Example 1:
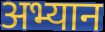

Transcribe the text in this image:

अभ्यान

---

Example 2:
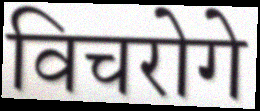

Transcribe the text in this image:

विचरोगे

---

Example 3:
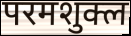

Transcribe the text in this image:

परमशुक्ल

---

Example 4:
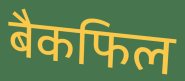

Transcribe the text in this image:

बैकफिल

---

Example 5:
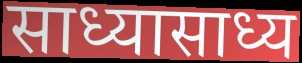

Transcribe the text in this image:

साध्यासाध्य